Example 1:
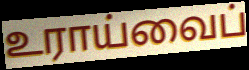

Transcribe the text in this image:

உராய்வைப்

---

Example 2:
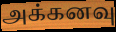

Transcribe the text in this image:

அக்கனவு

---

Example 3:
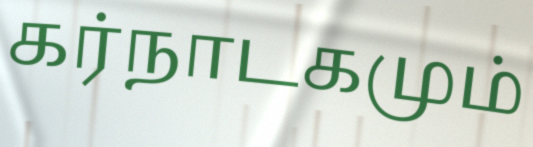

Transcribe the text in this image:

கர்நாடகமும்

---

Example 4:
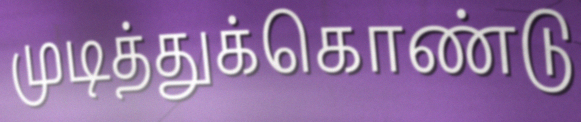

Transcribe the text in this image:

முடித்துக்கொண்டு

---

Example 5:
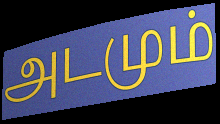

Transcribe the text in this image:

அடமும்